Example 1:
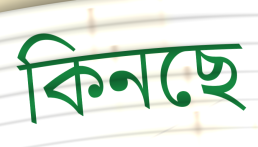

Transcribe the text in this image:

কিনছে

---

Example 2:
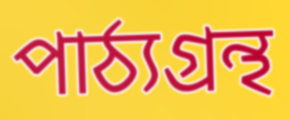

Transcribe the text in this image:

পাঠ্যগ্রন্থ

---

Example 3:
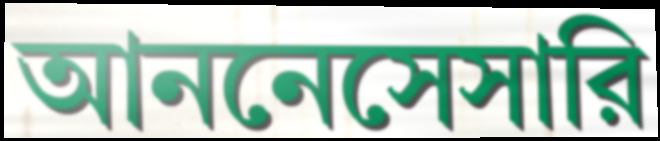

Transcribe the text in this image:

আননেসেসারি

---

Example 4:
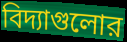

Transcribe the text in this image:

বিদ্যাগুলোর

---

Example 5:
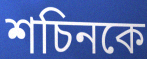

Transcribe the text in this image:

শচিনকে